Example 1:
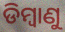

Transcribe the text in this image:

ଡିମ୍ୱାଣୁ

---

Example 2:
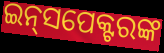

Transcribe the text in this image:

ଇନ୍‍ସପେକ୍ଟରଙ୍କ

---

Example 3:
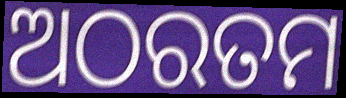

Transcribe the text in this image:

ଅଠରତମ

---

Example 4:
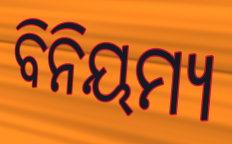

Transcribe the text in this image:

ବିନିୟମ୍ୟ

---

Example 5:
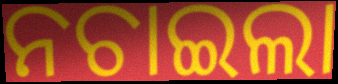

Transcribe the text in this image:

ନଚାଇଲା